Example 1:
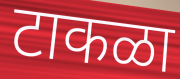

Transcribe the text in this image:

टाकळा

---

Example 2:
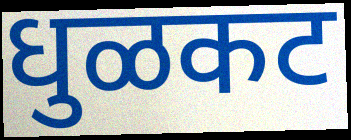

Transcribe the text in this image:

धुळकट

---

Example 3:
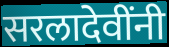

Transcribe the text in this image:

सरलादेवींनी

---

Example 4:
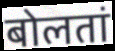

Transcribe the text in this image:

बोलतां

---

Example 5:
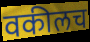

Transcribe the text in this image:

वकीलच